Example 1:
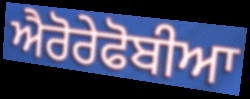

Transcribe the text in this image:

ਐਰੋਰੇਫੋਬੀਆ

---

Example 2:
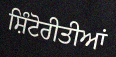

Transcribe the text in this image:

ਸ਼ਿੰਟੋਰੀਤੀਆਂ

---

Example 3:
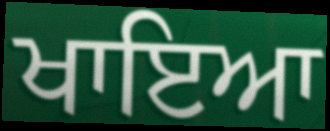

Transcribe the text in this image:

ਖਾਇਆ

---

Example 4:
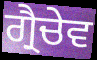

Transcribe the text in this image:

ਗ੍ਰੈਚੇਵ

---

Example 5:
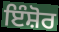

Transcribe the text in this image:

ਇੰਸ਼ੋਰ